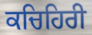
ਕਚਿਹਿਰੀ